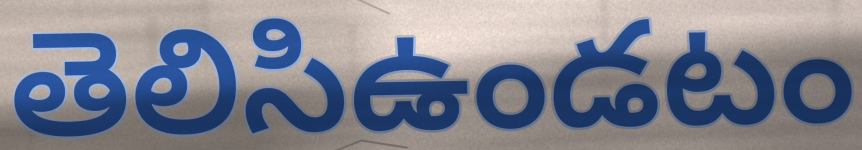
తెలిసిఉండటం